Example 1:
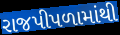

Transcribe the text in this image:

રાજપીપળામાંથી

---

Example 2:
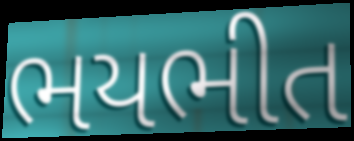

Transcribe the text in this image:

ભયભીત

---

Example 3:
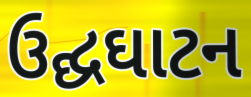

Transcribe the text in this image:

ઉદ્ઘઘાટન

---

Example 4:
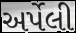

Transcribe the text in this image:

અર્પેલી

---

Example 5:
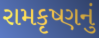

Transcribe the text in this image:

રામકૃષ્ણનું